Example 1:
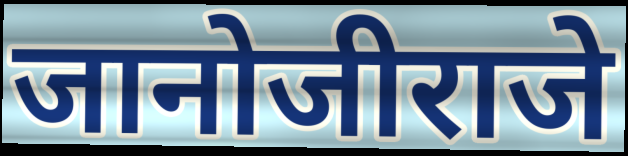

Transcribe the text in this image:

जानोजीराजे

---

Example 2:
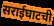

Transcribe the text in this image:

सराईघाटची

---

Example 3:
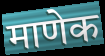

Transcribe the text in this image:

माणेक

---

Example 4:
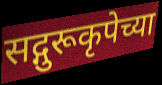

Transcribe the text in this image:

सद्गुरूकृपेच्या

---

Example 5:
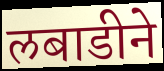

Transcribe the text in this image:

लबाडीने